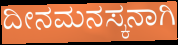
ದೀನಮನಸ್ಕನಾಗಿ